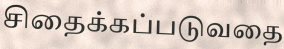
சிதைக்கப்படுவதை